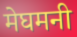
मेघमनी